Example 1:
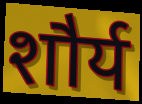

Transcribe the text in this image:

शौर्य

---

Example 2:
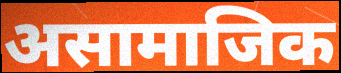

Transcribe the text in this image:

असामाजिक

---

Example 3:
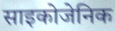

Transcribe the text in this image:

साइकोजेनिक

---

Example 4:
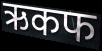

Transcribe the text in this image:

ऋकफ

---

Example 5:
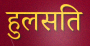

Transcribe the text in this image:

हुलसति